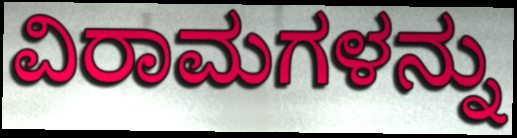
ವಿರಾಮಗಳನ್ನು